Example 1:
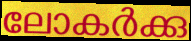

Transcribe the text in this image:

ലോകർക്കു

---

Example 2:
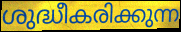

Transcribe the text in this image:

ശുദ്ധീകരിക്കുന്ന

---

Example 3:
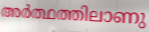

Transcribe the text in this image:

അർത്ഥത്തിലാണു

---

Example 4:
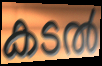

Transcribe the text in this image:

കടൽ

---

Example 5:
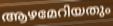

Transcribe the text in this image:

ആഴമേറിയതും